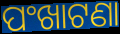
ପଂଖାଟଣା